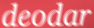
deodar